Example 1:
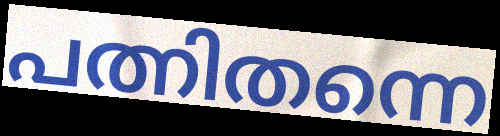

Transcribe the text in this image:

പത്നിതന്നെ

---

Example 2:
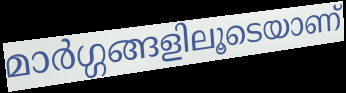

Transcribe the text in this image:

മാർഗ്ഗങ്ങളിലൂടെയാണ്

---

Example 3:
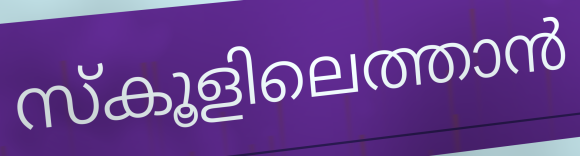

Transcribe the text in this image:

സ്കൂളിലെത്താൻ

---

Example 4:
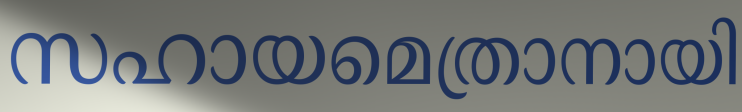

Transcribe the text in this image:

സഹായമെത്രാനായി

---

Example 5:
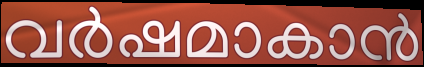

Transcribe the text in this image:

വർഷമാകാൻ